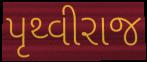
પૃથ્વીરાજ